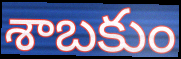
శాబకుం